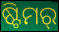
ଷ୍ଟିମର୍